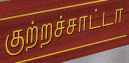
குற்றச்சாட்டா